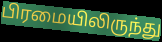
பிரமையிலிருந்து